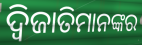
ଦ୍ୱିଜାତିମାନଙ୍କର